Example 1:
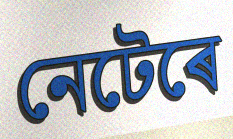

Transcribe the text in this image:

নেটেৰে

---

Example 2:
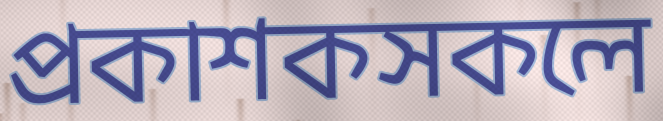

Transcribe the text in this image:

প্ৰকাশকসকলে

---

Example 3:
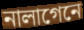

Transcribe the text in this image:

নালাগেনে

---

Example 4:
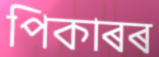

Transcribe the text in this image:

পিকাৰৰ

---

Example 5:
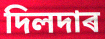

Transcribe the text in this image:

দিলদাৰ